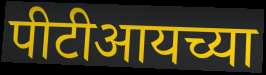
पीटीआयच्या